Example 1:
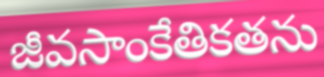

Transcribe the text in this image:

జీవసాంకేతికతను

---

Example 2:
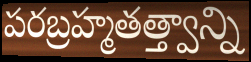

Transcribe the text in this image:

పరబ్రహ్మతత్త్వాన్ని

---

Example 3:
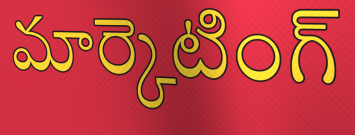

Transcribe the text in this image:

మార్కెటింగ్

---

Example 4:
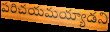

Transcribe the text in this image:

పరిచయమయ్యాడని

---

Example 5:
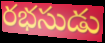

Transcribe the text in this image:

రభసుడు